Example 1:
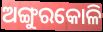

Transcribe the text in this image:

ଅଙ୍ଗୁରକୋଳି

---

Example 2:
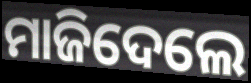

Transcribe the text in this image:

ମାଜିଦେଲେ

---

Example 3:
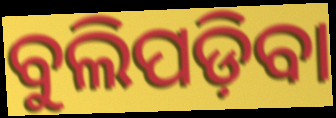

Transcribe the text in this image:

ବୁଲିପଡ଼ିବା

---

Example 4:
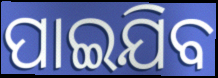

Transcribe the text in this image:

ପାଇଯିବ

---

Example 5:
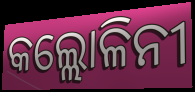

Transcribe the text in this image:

କଲ୍ଲୋଳିନୀ